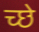
च्छे